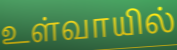
உள்வாயில்